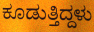
ಕೂಡುತ್ತಿದ್ದಳು